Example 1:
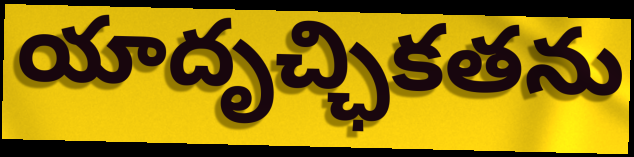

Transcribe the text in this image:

యాదృచ్ఛికతను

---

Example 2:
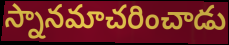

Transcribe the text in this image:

స్నానమాచరించాడు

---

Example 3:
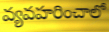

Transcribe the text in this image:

వ్యవహరించాలో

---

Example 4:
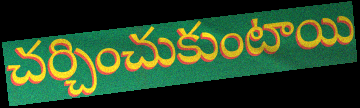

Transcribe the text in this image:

చర్చించుకుంటాయి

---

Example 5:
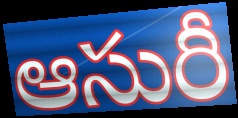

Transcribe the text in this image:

ఆసురీ